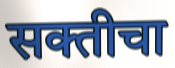
सक्तीचा